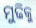
ମୁଢିକୁ